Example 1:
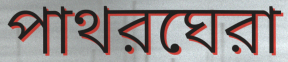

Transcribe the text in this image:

পাথরঘেরা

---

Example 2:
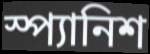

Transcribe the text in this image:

স্প্যানিশ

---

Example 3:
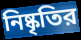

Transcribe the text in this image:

নিষ্কৃতির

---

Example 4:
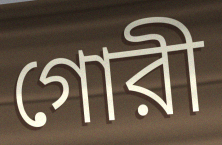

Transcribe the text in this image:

গোরী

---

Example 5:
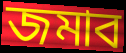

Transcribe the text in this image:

জমাব